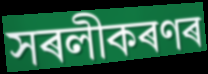
সৰলীকৰণৰ